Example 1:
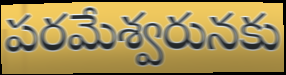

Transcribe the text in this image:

పరమేశ్వరునకు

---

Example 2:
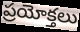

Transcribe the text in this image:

ప్రయోక్తలు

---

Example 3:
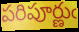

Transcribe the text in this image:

పరిపూర్ణుఁ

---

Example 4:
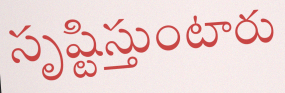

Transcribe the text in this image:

సృష్టిస్తుంటారు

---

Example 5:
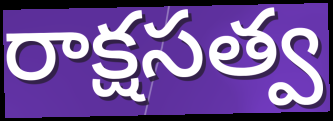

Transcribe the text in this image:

రాక్షసత్వ